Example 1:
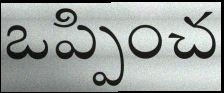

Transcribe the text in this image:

ఒప్పించ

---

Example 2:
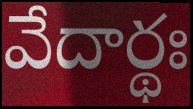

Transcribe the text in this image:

వేదార్థః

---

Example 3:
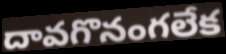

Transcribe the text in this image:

దావగొనంగలేక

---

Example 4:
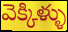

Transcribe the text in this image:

వెక్కిళ్ళు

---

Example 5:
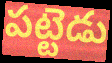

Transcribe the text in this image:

పట్టెడు